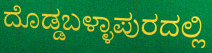
ದೊಡ್ಡಬಳ್ಳಾಪುರದಲ್ಲಿ